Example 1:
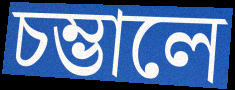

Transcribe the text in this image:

চম্ভালে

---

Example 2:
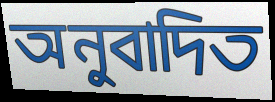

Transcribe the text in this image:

অনুবাদিত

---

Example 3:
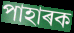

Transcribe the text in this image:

পাহাৰক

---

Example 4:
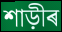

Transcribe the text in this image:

শাড়ীৰ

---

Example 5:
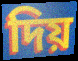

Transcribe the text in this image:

দিয়